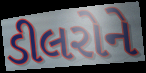
ડીલરોને